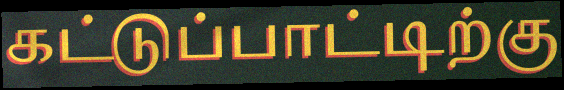
கட்டுப்பாட்டிற்கு